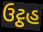
ઉટ્ઠહ